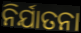
ନିର୍ଯାତନା